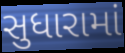
સુધારામાં